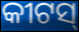
କୀଟସ୍